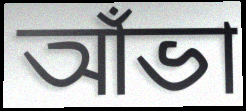
আঁভা